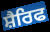
ਸ਼ੈਰਿਫ